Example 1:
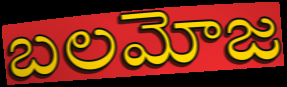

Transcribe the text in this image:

బలమోజ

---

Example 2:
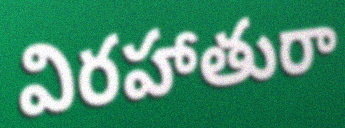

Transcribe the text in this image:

విరహాతురా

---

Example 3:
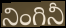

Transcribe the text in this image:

నింగినీ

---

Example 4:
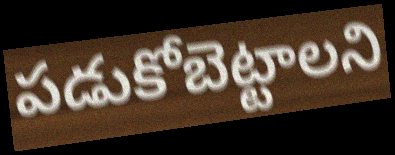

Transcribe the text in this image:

పడుకోబెట్టాలని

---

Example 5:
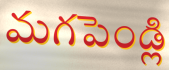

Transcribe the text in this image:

మగపెండ్లి